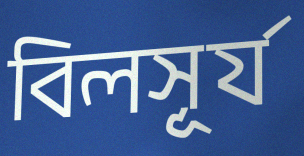
বিলসূর্য